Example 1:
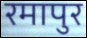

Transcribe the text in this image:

रमापुर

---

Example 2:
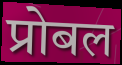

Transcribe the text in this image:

प्रोबल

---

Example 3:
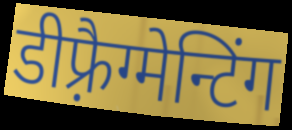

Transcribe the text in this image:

डीफ़्रैग्मेन्टिंग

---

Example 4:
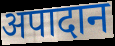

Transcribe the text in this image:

अपादान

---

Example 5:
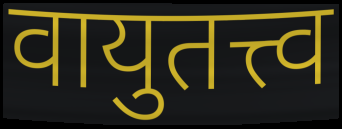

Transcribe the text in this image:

वायुतत्त्व